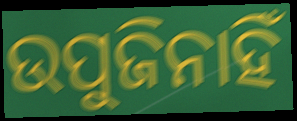
ଉପୁଜିନାହିଁ